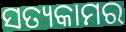
ସତ୍ୟକାମର